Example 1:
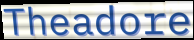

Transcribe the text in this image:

Theadore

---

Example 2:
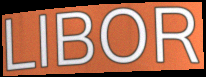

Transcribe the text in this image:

LIBOR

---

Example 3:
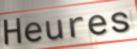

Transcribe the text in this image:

Heures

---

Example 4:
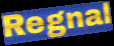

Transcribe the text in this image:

Regnal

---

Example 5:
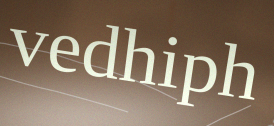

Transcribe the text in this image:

vedhiph